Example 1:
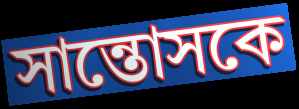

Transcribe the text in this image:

সান্তোসকে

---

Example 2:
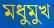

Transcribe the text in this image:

মধুমুখ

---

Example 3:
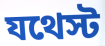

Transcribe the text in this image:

যথেস্ট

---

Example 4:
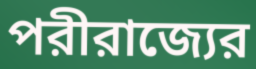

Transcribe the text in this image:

পরীরাজ্যের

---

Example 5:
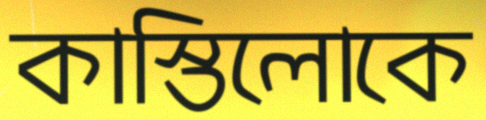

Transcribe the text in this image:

কাস্তিলোকে